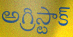
అగ్రిస్టాక్